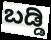
ಬಡ್ಡಿ